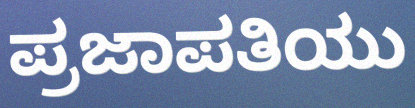
ಪ್ರಜಾಪತಿಯು